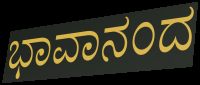
ಭಾವಾನಂದ